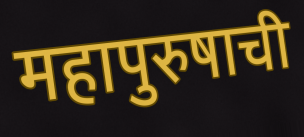
महापुरुषाची